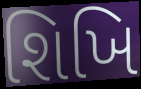
શિખિ